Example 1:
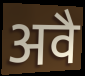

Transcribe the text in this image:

अवै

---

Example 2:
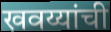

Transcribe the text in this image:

खवय्यांची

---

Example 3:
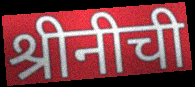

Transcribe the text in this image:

श्रीनीची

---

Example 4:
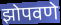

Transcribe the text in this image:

झोपवणे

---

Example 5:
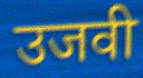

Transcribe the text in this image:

उजवी